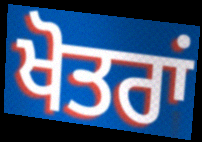
ਖੋਤਰਾਂ